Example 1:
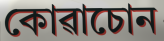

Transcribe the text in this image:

কোৱাচোন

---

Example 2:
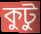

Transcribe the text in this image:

কুটু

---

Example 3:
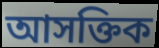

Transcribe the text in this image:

আসক্তিক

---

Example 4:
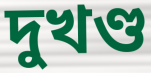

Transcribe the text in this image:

দুখণ্ড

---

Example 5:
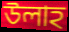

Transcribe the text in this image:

উলাহ